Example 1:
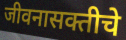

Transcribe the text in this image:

जीवनासक्तीचे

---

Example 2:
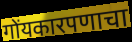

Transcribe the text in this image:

गोंयकारपणाचा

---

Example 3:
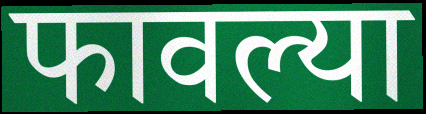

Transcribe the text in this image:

फावल्या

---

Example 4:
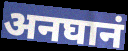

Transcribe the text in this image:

अनघानं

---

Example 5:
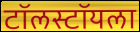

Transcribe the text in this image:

टॉलस्टॉयला